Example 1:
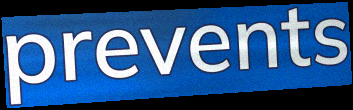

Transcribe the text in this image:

prevents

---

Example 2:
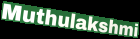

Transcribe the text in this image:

Muthulakshmi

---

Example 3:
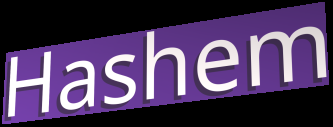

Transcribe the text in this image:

Hashem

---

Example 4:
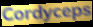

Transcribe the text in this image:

Cordyceps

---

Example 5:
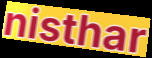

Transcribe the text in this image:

nisthar